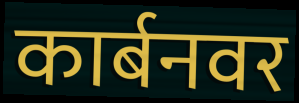
कार्बनवर